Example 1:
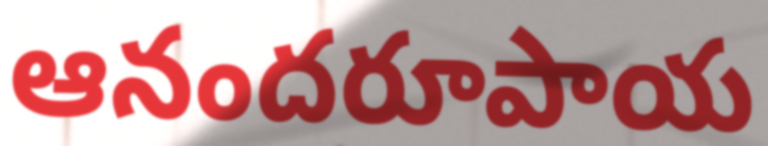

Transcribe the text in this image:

ఆనందరూపాయ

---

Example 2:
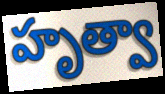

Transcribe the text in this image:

హృత్వా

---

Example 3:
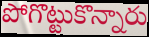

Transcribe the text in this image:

పోగొట్టుకొన్నారు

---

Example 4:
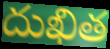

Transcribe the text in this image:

దుఖిత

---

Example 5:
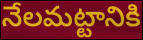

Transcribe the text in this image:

నేలమట్టానికి